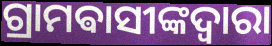
ଗ୍ରାମଵାସୀଙ୍କଦ୍ୱାରା